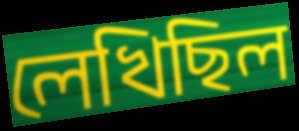
লেখিছিল